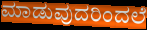
ಮಾಡುವುದರಿಂದಲೆ